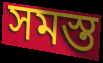
সমস্ত